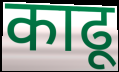
काढू